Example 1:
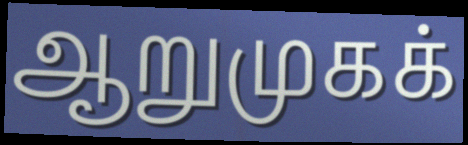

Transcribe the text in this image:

ஆறுமுகக்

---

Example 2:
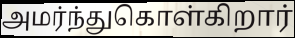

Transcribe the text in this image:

அமர்ந்துகொள்கிறார்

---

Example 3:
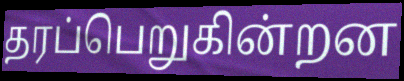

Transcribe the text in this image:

தரப்பெறுகின்றன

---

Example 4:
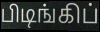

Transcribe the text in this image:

பிடிங்கிப்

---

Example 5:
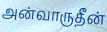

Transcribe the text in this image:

அன்வாருதீன்